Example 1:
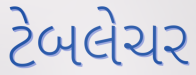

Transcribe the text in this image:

ટેબલેચર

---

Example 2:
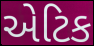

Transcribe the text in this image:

એટિક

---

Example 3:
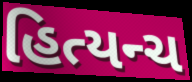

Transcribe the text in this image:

હિત્યન્ચ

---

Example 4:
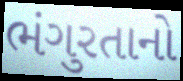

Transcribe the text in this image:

ભંગુરતાનો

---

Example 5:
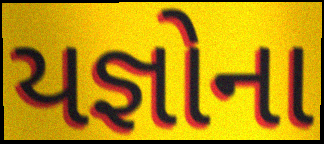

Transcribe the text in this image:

યજ્ઞોના